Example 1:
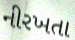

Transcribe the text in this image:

નીરખતા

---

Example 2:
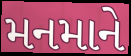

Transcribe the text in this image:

મનમાને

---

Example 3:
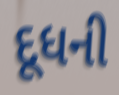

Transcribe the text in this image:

દૂધની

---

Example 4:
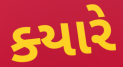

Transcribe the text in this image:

ક્‍યારે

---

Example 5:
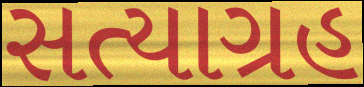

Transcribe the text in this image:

સત્‍યાગ્રહ